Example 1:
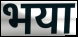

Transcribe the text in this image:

भया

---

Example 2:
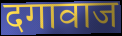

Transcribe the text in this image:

दगावाज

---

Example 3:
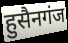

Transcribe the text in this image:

हुसैनगंज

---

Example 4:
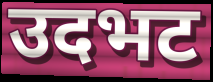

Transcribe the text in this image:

उदभट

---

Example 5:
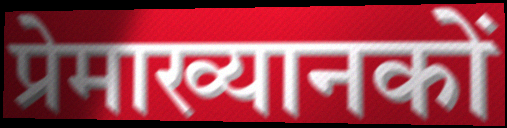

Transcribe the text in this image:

प्रेमाख्यानकों